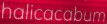
halicacabum